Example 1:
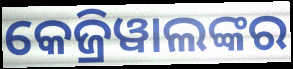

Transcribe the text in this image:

କେଜ୍ରିୱାଲଙ୍କର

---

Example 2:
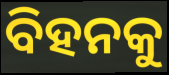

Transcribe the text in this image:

ବିହନକୁ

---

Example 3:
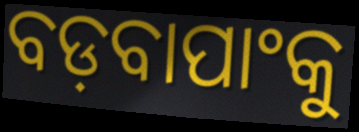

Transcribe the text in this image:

ବଡ଼ବାପାଂକୁ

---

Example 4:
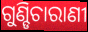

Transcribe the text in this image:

ଗୁଣ୍ଡିଚାରାଣୀ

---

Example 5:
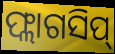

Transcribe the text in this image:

ଫ୍ଲାଗସିପ୍